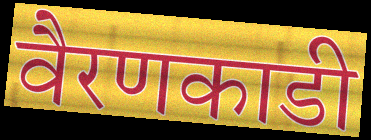
वैरणकाडी